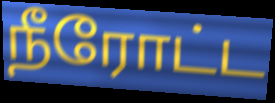
நீரோட்ட